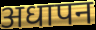
अधापन